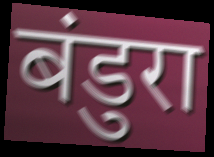
बंडुरा